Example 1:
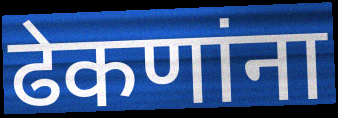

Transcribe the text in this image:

ढेकणांना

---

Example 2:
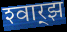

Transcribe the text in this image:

श्वार्झ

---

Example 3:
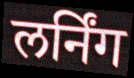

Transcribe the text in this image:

लर्निंग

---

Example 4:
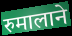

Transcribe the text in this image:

रुमालाने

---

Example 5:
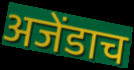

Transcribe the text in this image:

अजेंडाच